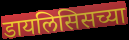
डायलिसिसच्या